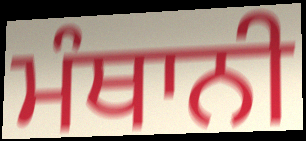
ਮੰਥਾਨੀ